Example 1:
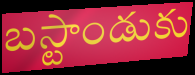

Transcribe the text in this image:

బస్టాండుకు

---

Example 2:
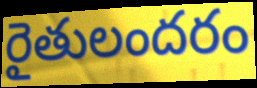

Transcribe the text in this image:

రైతులందరం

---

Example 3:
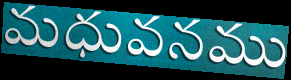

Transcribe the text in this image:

మధువనము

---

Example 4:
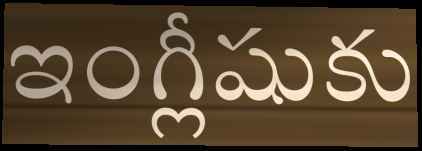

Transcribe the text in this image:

ఇంగ్లీషుకు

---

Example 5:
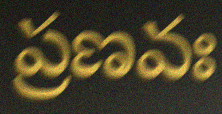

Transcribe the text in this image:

ప్రణవః